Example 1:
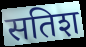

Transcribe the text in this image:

सतिश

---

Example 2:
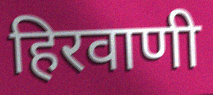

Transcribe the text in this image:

हिरवाणी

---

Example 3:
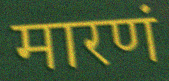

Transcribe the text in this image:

मारणं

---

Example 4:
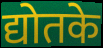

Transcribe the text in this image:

द्योतके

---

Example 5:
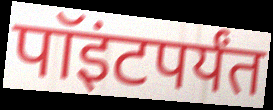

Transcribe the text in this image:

पॉइंटपर्यंत